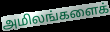
அமிலங்களைக்